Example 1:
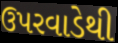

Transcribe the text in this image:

ઉપરવાડેથી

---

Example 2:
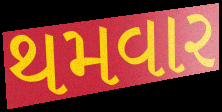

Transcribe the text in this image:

થમવાર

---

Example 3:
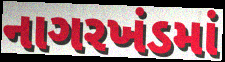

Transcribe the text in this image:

નાગરખંડમાં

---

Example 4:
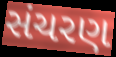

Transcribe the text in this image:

સંચરણ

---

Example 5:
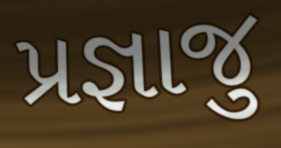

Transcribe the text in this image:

પ્રજ્ઞાજુ